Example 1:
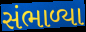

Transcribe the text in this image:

સંભાળ્યા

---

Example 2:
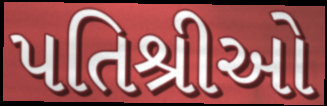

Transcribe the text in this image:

પતિશ્રીઓ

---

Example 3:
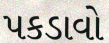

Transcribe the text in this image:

પકડાવો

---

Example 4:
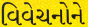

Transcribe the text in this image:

વિવેચનોને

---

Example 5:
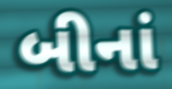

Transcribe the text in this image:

બીનાં